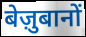
बेज़ुबानों